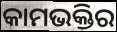
କାମଭକ୍ତିର